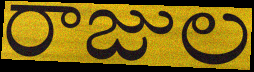
రాజుల